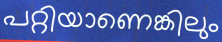
പറ്റിയാണെങ്കിലും